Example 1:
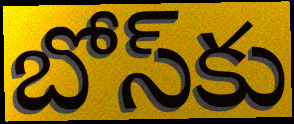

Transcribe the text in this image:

బోస్‌కు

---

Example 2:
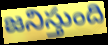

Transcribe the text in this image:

జనిస్తుంది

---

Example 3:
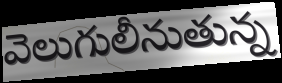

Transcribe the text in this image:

వెలుగులీనుతున్న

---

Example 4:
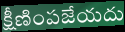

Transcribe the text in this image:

క్షీణింపజేయదు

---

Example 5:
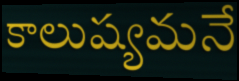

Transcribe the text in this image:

కాలుష్యమనే